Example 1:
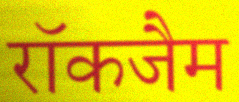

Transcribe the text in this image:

रॉकजैम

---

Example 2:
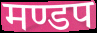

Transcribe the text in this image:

मण्‍डप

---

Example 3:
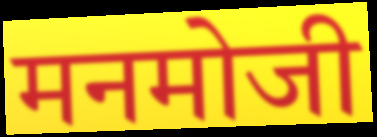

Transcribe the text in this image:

मनमोजी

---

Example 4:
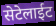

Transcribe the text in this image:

सेटेलाईट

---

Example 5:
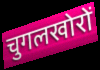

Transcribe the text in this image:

चुगलखोरों